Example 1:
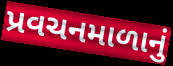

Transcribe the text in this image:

પ્રવચનમાળાનું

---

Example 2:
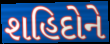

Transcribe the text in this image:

શહિદોને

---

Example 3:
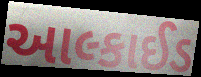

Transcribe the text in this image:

આલ્કાઈડ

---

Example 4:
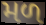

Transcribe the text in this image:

મળ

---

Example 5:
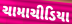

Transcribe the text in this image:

ચામાચીડિયા